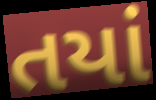
તયાં